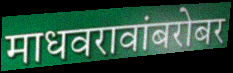
माधवरावांबरोबर